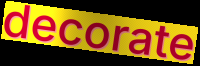
decorate